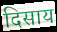
दिसाय